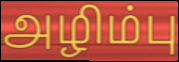
அழிம்பு